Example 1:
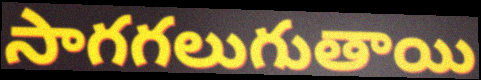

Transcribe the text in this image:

సాగగలుగుతాయి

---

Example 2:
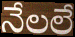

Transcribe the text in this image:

నేలలే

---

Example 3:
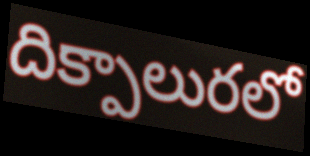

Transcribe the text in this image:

దిక్పాలురలో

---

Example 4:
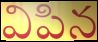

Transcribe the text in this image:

విపిన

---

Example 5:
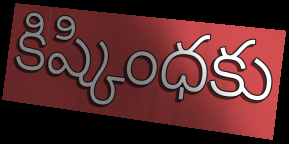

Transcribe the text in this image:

కిష్కింధకు